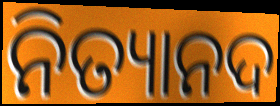
ନିତ୍ୟାନଦ